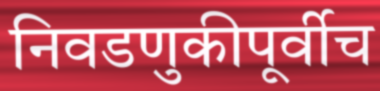
निवडणुकीपूर्वीच